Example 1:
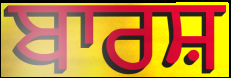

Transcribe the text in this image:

ਬਾਰਸ਼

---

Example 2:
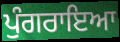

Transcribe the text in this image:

ਪੁੰਗਰਾਇਆ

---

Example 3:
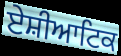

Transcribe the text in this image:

ਏਸ਼ੀਆਟਿਕ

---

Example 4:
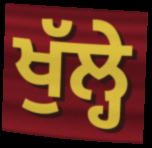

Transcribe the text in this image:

ਖੁੱਲ੍ਹੇ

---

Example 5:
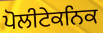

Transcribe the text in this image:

ਪੋਲੀਟੇਕਨਿਕ